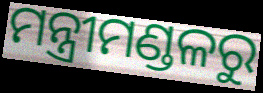
ମନ୍ତ୍ରୀମଣ୍ଡଳରୁ